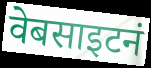
वेबसाइटनं